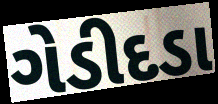
ગેડીદડા